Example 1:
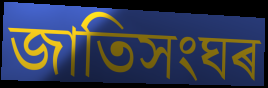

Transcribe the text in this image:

জাতিসংঘৰ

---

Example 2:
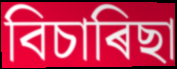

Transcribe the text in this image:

বিচাৰিছা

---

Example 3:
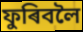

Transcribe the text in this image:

ফুৰিবলৈ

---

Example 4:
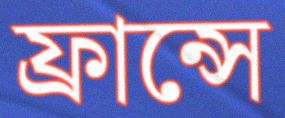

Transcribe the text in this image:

ফ্ৰান্সে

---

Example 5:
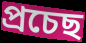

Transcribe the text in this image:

প্ৰচেছ